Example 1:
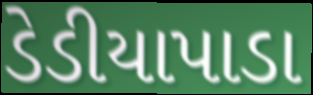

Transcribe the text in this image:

ડેડીયાપાડા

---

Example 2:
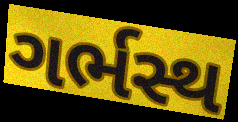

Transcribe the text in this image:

ગર્ભસ્થ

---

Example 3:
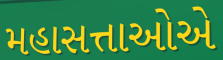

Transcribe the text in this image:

મહાસત્તાઓએ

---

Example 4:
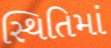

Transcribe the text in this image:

સ્થિતિમાં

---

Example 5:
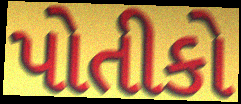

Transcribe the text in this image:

પોતીકો